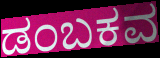
ಡಂಬಕವ